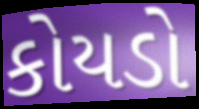
કોયડો